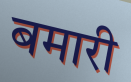
बमारी